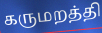
கருமறத்தி